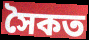
সৈকত